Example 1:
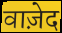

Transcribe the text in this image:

वाज़ेद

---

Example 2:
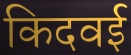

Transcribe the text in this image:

किदवई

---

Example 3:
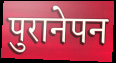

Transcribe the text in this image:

पुरानेपन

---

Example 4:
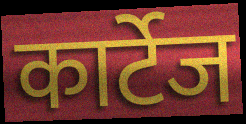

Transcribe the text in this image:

कार्टेज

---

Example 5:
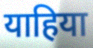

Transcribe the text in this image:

याहिया